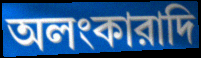
অলংকারাদি